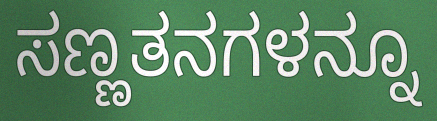
ಸಣ್ಣತನಗಳನ್ನೂ